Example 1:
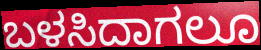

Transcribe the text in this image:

ಬಳಸಿದಾಗಲೂ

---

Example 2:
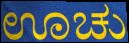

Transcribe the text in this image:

ಊಚು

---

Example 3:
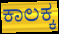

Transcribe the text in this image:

ಕಾಲಕ್ಕ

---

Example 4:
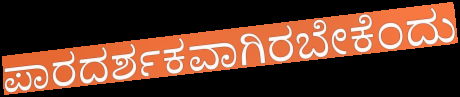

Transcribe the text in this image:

ಪಾರದರ್ಶಕವಾಗಿರಬೇಕೆಂದು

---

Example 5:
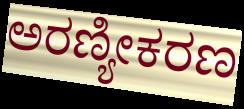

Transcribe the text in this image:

ಅರಣ್ಯೀಕರಣ